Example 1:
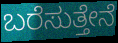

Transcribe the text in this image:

ಬರೆಸುತ್ತೇನೆ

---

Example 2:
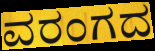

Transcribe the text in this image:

ವರಂಗದ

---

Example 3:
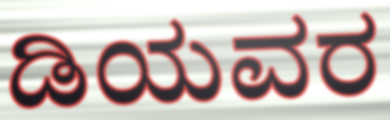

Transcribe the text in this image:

ಡಿಯವರ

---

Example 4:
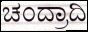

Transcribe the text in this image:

ಚಂದ್ರಾದಿ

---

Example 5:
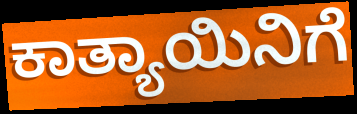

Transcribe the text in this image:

ಕಾತ್ಯಾಯಿನಿಗೆ